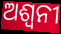
ଅଶ୍ଵନୀ